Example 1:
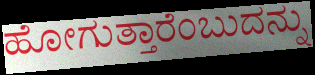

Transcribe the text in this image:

ಹೋಗುತ್ತಾರೆಂಬುದನ್ನು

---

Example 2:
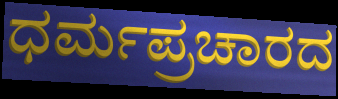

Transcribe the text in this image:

ಧರ್ಮಪ್ರಚಾರದ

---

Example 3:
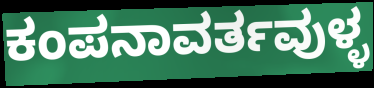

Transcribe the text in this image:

ಕಂಪನಾವರ್ತವುಳ್ಳ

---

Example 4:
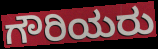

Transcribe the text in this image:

ಗೌರಿಯರು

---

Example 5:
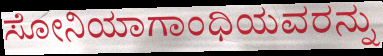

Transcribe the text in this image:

ಸೋನಿಯಾಗಾಂಧಿಯವರನ್ನು